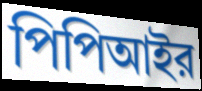
পিপিআইর